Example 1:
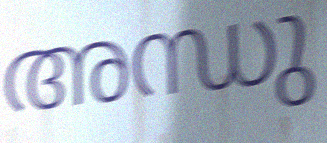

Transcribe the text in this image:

അന്ധു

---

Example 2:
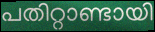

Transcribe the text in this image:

പതിറ്റാണ്ടായി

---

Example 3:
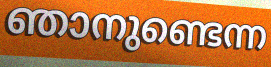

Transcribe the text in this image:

ഞാനുണ്ടെന്ന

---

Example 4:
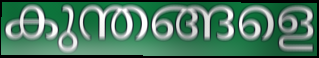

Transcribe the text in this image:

കുന്തങ്ങളെ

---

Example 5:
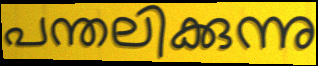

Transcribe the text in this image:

പന്തലിക്കുന്നു